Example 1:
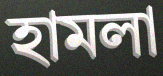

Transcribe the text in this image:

হামলা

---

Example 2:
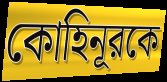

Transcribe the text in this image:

কোহিনূরকে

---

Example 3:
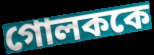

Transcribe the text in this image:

গোলককে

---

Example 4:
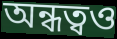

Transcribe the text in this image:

অন্ধত্বও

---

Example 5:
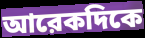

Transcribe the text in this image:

আরেকদিকে